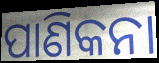
ପାଣିକନା